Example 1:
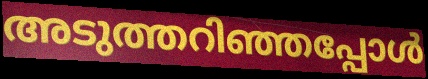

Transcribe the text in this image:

അടുത്തറിഞ്ഞപ്പോൾ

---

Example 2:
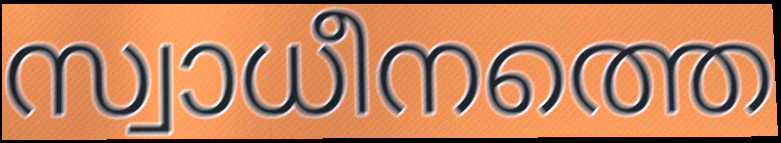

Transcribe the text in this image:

സ്വാധീനത്തെ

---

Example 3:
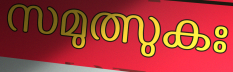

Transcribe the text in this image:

സമുത്സുകഃ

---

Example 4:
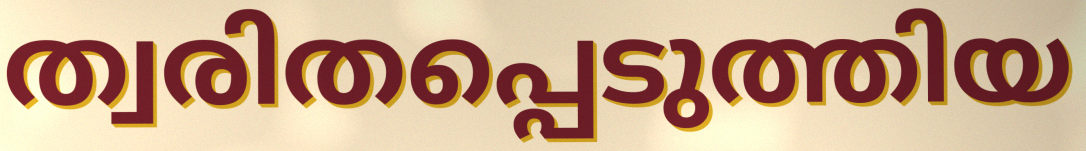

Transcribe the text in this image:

ത്വരിതപ്പെടുത്തിയ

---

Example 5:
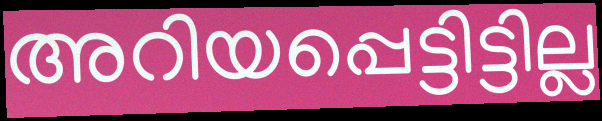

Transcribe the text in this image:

അറിയപ്പെട്ടിട്ടില്ല